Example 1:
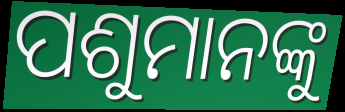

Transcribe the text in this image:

ପଶୁମାନଙ୍କୁ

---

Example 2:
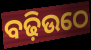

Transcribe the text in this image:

ବଢ଼ିଉଠେ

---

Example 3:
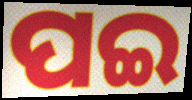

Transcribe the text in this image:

ପଇ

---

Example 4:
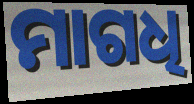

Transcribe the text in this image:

ମାଗଧି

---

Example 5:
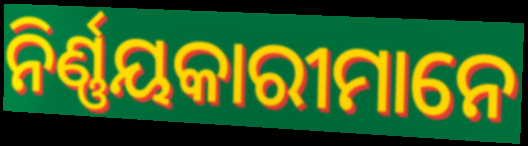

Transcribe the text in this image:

ନିର୍ଣ୍ଣୟକାରୀମାନେ